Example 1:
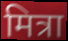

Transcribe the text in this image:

मित्रा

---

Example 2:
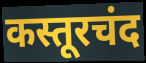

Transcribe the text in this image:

कस्तूरचंद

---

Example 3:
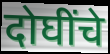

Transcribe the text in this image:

दोघींचे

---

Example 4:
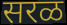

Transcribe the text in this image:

सरळ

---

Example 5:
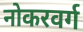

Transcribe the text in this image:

नोकरवर्ग